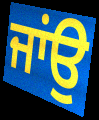
ਜਾਂਉ